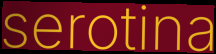
serotina